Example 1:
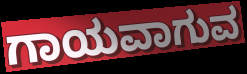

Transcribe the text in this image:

ಗಾಯವಾಗುವ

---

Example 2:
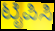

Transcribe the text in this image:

ಟೈಪಿಸಿ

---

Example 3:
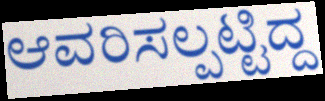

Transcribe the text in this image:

ಆವರಿಸಲ್ಪಟ್ಟಿದ್ದ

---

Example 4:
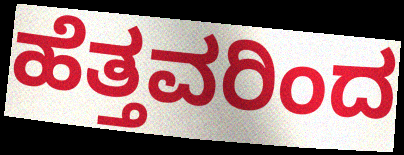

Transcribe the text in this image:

ಹೆತ್ತವರಿಂದ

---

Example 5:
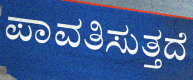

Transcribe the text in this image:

ಪಾವತಿಸುತ್ತದೆ